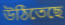
উঠিতেছে